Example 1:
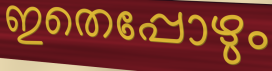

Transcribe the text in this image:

ഇതെപ്പോഴും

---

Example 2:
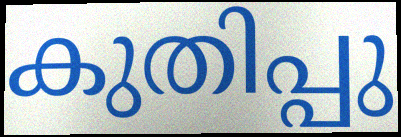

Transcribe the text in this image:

കുതിപ്പു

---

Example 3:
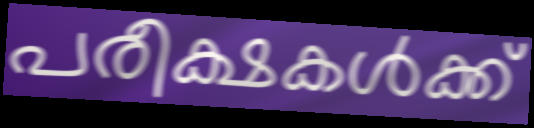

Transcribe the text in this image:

പരീക്ഷകൾക്ക്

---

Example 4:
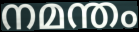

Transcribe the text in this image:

നമന്തം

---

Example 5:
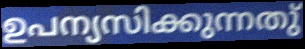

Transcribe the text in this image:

ഉപന്യസിക്കുന്നതു്